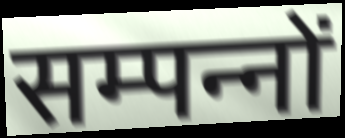
सम्पन्नों